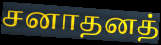
சனாதனத்